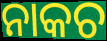
ନାକଚ